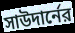
সাউদার্নের